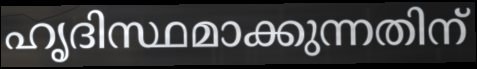
ഹൃദിസ്ഥമാക്കുന്നതിന്